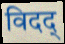
विदद्